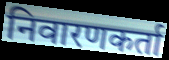
निवारणकर्ता